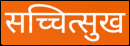
सच्चित्सुख